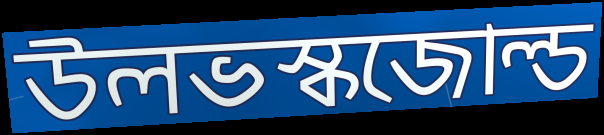
উলভস্কজোল্ড